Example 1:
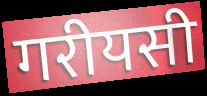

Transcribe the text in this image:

गरीयसी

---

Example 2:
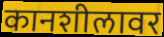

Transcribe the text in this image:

कानशीलावर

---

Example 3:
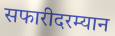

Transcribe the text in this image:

सफारीदरम्यान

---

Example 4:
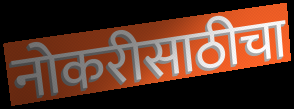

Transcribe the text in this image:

नोकरीसाठीचा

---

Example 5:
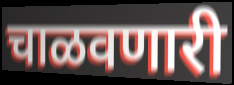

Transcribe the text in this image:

चाळवणारी